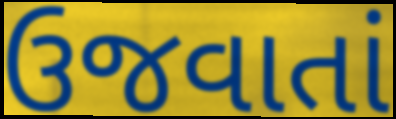
ઉજવાતાં